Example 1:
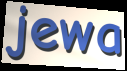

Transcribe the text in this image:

jewa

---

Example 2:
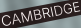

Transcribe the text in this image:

CAMBRIDGE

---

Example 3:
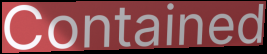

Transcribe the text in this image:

Contained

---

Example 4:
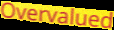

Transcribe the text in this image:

Overvalued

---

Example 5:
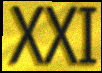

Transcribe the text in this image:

XXI